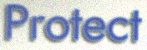
Protect